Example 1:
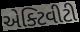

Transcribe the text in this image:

એક્ટિવીટી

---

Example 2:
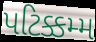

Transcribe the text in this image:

પટિક્કમ્મ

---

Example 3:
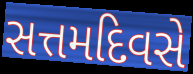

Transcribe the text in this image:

સત્તમદિવસે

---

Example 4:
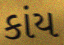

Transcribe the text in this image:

કાંય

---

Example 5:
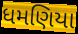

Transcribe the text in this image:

ધમણિયા